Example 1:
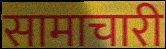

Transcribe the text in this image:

सामाचारी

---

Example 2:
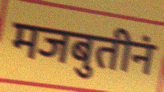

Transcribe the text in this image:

मजबुतीनं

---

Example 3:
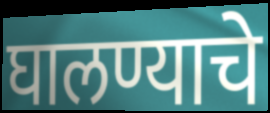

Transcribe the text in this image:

घालण्याचे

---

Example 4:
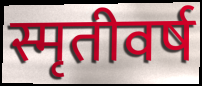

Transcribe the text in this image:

स्मृतीवर्ष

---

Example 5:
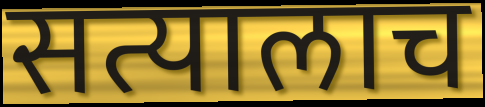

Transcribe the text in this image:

सत्यालाच